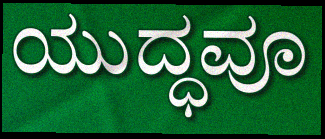
ಯುದ್ಧವೂ